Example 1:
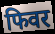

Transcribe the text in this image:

फिवर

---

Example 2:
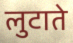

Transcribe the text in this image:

लुटाते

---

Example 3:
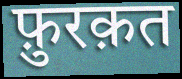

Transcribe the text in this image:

फ़ुरक़त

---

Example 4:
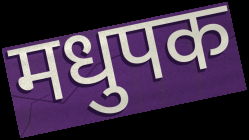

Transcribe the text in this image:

मधुपक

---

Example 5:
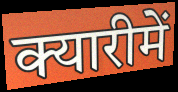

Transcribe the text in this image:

क्यारीमें